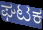
ಘಟಕ